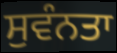
ਸੁਵੰਨਤਾ